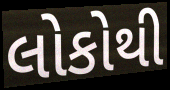
લોકોથી